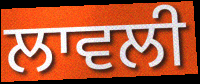
ਲਾਵਲੀ